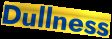
Dullness